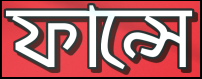
ফান্সে